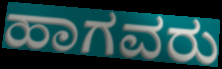
ಹಾಗವರು